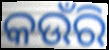
କଉଁରି